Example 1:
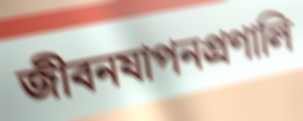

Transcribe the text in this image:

জীবনযাপনপ্রণালি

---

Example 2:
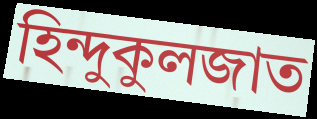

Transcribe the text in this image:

হিন্দুকুলজাত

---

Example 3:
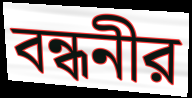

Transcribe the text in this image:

বন্ধনীর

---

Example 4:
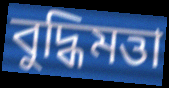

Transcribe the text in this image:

বুদ্ধিমত্তা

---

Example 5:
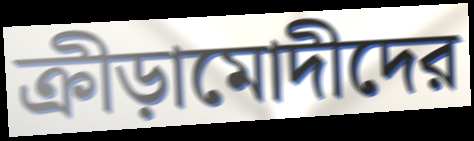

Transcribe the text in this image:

ক্রীড়ামোদীদের